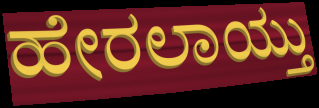
ಹೇರಲಾಯ್ತು